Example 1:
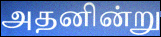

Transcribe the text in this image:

அதனின்று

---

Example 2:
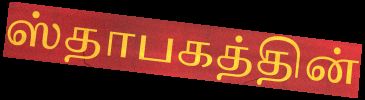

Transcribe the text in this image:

ஸ்தாபகத்தின்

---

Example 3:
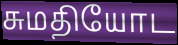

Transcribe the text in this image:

சுமதியோட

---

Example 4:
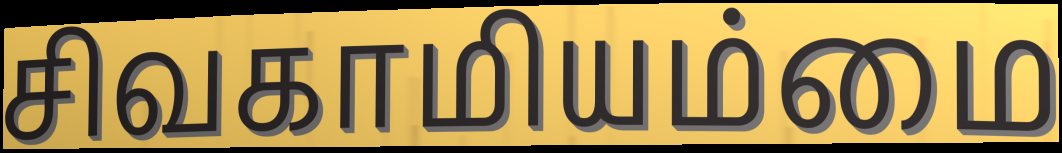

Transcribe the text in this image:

சிவகாமியம்மை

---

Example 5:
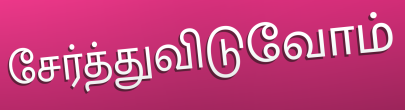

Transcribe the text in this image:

சேர்த்துவிடுவோம்